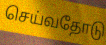
செய்வதோடு